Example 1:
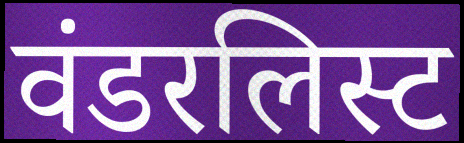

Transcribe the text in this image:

वंडरलिस्ट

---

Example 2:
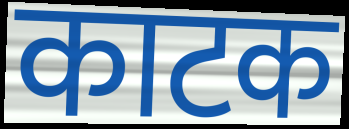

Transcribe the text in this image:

काटक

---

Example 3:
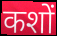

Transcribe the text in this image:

कशों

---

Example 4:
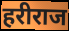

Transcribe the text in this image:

हरीराज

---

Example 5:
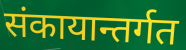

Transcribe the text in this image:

संकायान्तर्गत